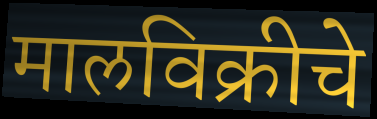
मालविक्रीचे